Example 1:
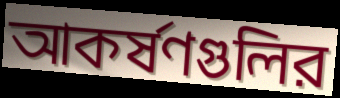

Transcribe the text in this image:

আকর্ষণগুলির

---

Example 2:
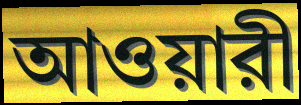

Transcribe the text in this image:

আওয়ারী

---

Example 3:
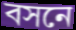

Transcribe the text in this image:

বসনে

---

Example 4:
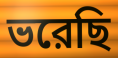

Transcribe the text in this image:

ভরেছি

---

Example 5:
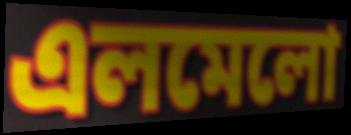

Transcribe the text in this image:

এলমেলো